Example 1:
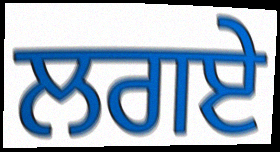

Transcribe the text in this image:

ਲਗਏ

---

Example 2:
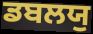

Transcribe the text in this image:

ਡਬਲਯੁ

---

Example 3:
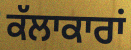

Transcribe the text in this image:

ਕੱਲਾਕਾਰਾਂ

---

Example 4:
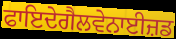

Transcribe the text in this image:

ਫਾਇਦੇਗੈਲਵੇਨਾਈਜ਼ਡ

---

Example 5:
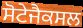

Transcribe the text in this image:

ਸੋਟੇਜੈਕਸਲ